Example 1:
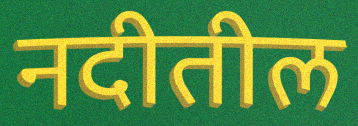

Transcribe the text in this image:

नदीतील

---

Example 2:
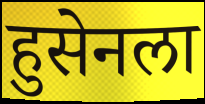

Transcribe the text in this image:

हुसेनला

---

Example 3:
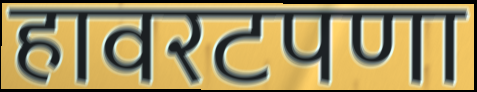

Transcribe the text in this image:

हावरटपणा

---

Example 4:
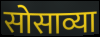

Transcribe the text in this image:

सोसाव्या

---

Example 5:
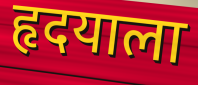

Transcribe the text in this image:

हृदयाला